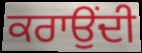
ਕਰਾਉਂਦੀ